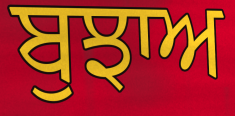
ਬੁਝਾਅ